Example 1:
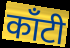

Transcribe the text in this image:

काँटी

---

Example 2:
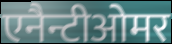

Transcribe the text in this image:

एनैन्टीओमर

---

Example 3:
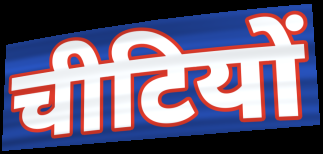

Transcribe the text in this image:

चीटियों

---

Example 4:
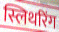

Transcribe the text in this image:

स्लिथरिंग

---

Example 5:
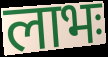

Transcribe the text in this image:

लाभः